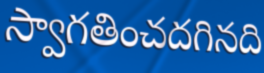
స్వాగతించదగినది